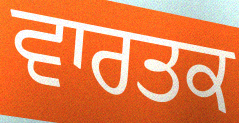
ਵਾਰਤਕ